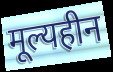
मूल्यहीन